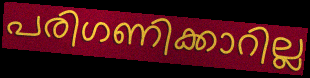
പരിഗണിക്കാറില്ല